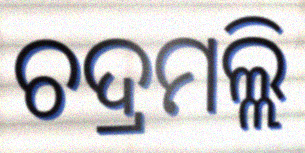
ଚଦ୍ରମଲ୍ଲି